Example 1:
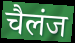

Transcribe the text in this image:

चैलंज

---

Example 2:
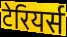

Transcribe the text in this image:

टेरियर्स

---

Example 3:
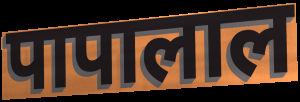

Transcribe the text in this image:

पापालाल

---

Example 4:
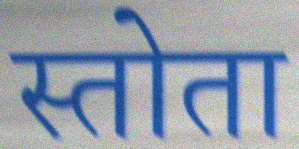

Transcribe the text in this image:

स्तोता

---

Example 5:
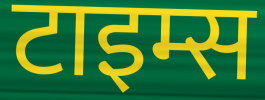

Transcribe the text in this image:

टाइम्‍स